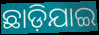
ଛାଡ଼ିଯାଇ